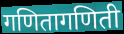
गणितागणिती